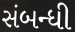
સંબન્ધી